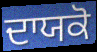
ਦਾਯਕੋ